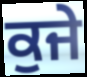
ਕੁਜੇ